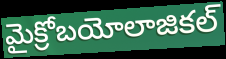
మైక్రోబయోలాజికల్